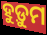
ହୁଡ଼ୁମ